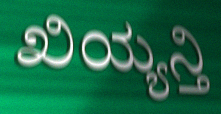
ಖಿಯ್ಯನ್ತಿ